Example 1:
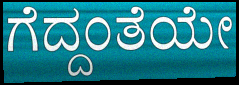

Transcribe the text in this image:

ಗೆದ್ದಂತೆಯೇ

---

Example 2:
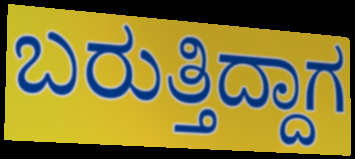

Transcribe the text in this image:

ಬರುತ್ತಿದ್ದಾಗ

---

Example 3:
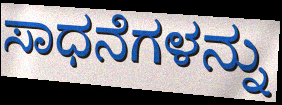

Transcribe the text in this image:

ಸಾಧನೆಗಳನ್ನು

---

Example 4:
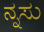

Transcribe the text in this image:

ನ್ನಸು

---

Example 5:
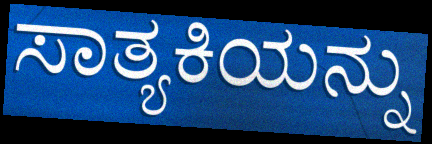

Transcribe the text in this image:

ಸಾತ್ಯಕಿಯನ್ನು